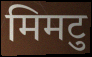
मिमटु